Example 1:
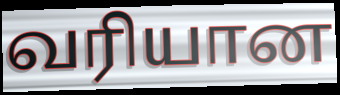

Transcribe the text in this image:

வரியான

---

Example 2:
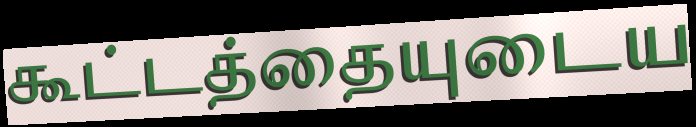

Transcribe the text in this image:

கூட்டத்தையுடைய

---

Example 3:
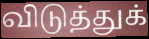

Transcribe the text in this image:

விடுத்துக்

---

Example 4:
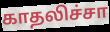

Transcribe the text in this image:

காதலிச்சா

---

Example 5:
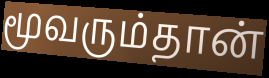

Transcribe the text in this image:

மூவரும்தான்